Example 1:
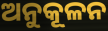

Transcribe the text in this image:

ଅନୁକୂଳନ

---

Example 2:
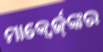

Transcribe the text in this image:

ମାକ୍ୱେର୍ଜ୍‌ଙ୍କର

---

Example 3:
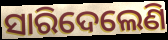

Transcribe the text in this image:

ସାରିଦେଲେଣି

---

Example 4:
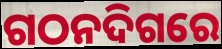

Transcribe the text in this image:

ଗଠନଦିଗରେ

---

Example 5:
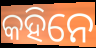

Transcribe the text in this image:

କହିନେ